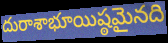
దురాశాభూయిష్ఠమైనది